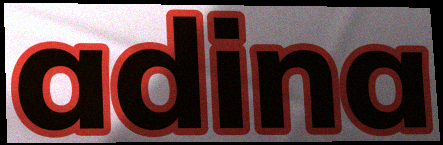
adina